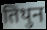
तिथुन